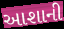
આશાની